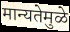
मान्यतेमुळे